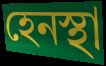
হেনস্থা